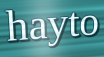
hayto